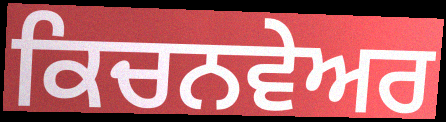
ਕਿਚਨਵੇਅਰ